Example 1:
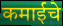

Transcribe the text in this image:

कमाईचे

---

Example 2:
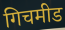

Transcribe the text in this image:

गिचमीड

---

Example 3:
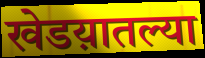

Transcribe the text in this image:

खेडय़ातल्या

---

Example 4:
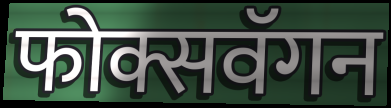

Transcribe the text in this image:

फोक्सवॅगन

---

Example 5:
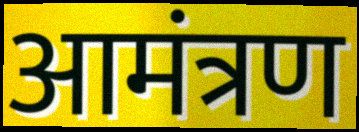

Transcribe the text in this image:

आमंत्रण